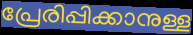
പ്രേരിപ്പിക്കാനുള്ള